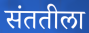
संततीला